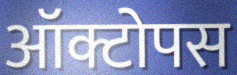
ऑक्टोपस